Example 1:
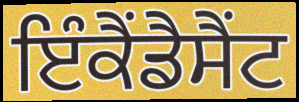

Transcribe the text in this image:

ਇੰਕੈਂਡੈਸੈਂਟ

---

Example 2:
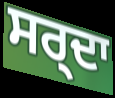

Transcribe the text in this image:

ਸਰ੍ਦਾ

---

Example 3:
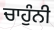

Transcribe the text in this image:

ਚਾਹੁੰਨੀ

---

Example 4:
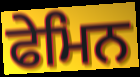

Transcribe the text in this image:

ਫੇਮਿਨ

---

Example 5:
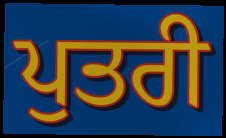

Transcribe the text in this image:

ਪੁਤਰੀ